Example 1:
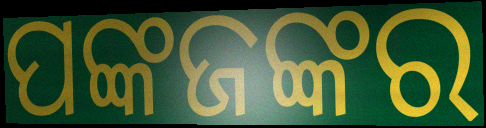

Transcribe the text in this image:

ପଙ୍କଜଙ୍କର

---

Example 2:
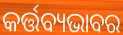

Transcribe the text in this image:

କର୍ତ୍ତବ୍ୟଭାବର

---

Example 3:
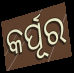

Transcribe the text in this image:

କର୍ପୂର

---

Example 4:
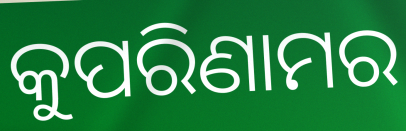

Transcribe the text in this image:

କୁପରିଣାମର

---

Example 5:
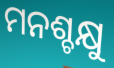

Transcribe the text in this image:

ମନଶ୍ଚକ୍ଷୁ